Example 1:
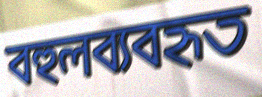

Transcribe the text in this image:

বহুলব্যবহৃত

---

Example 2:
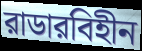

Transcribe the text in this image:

রাডারবিহীন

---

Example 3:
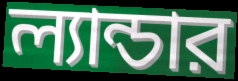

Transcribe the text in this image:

ল্যান্ডার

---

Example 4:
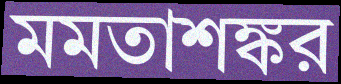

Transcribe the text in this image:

মমতাশঙ্কর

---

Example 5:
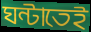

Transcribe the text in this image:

ঘন্টাতেই